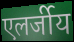
एलर्जीय